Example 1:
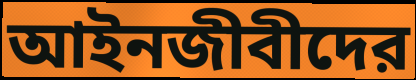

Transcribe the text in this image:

আইনজীবীদের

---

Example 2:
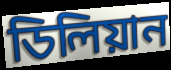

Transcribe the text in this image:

ডিলিয়ান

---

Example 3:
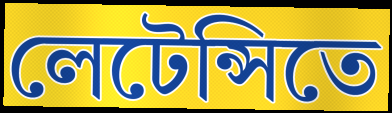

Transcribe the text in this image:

লেটেন্সিতে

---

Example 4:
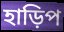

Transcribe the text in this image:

হাড়িপ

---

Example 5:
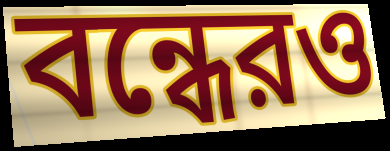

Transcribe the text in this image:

বন্ধেরও